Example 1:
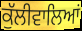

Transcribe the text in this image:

ਕੁੱਲੀਵਾਲਿਆਂ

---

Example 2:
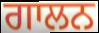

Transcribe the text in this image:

ਗਾਲਨ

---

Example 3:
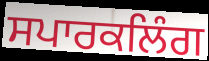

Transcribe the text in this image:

ਸਪਾਰਕਲਿੰਗ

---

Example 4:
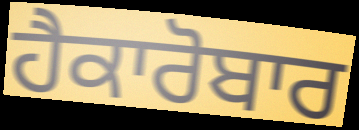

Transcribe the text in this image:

ਹੈਕਾਰੋਬਾਰ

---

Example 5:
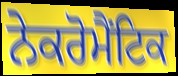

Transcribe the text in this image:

ਨੇਕਰੋਮੈਂਟਿਕ